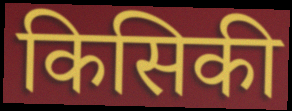
किसिकी